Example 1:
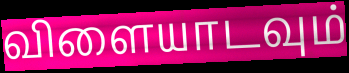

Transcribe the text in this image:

விளையாடவும்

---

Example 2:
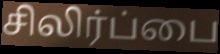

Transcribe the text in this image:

சிலிர்ப்பை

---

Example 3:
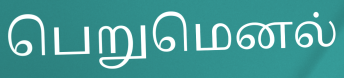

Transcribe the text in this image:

பெறுமெனல்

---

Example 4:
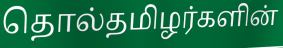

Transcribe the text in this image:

தொல்தமிழர்களின்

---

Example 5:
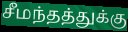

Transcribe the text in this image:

சீமந்தத்துக்கு